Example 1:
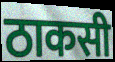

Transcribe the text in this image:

ठाकसी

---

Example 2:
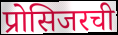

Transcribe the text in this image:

प्रोसिजरची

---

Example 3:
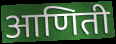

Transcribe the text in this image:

आणिती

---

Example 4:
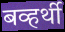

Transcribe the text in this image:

बव्हर्थी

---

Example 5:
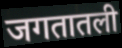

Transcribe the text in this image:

जगतातली